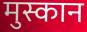
मुस्कान